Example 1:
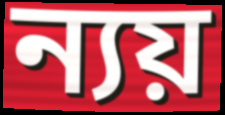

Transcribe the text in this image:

ন্যয়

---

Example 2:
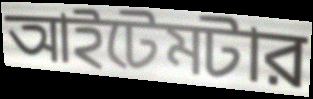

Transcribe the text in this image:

আইটেমটার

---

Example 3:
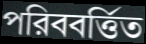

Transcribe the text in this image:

পরিববর্ত্তিত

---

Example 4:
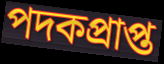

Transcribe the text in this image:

পদকপ্রাপ্ত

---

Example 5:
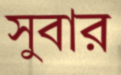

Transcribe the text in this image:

সুবার